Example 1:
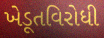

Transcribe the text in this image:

ખેડૂતવિરોધી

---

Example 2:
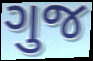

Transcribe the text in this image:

ગુજ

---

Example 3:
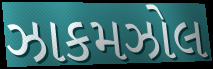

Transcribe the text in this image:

ઝાકમઝોલ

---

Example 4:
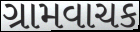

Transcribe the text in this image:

ગ્રામવાચક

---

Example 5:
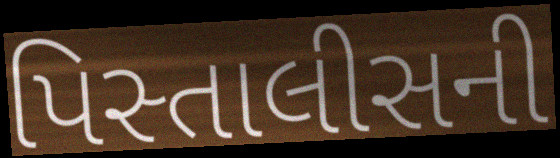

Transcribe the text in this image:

પિસ્તાલીસની